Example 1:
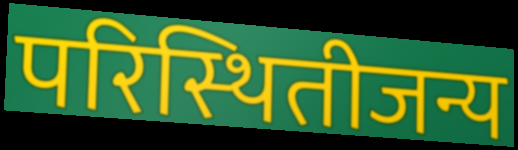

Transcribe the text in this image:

परिस्थितीजन्य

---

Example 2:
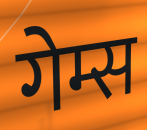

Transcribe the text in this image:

गेम्स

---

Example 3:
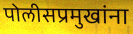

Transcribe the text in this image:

पोलीसप्रमुखांना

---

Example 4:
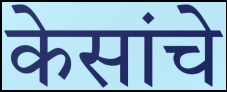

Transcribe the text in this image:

केसांचे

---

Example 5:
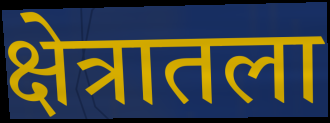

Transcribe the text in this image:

क्षेत्रातला